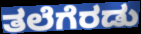
ತಲೆಗೆರಡು